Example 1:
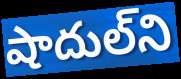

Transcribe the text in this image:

షాదుల్‌ని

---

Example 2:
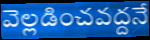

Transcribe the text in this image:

వెల్లడించవద్దనే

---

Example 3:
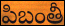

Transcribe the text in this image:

పిబంతీ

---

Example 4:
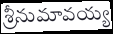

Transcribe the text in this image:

శ్రీనుమావయ్య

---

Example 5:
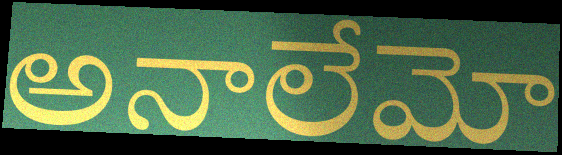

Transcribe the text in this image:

అనాలేమో